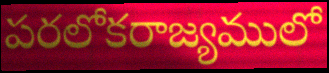
పరలోకరాజ్యములో